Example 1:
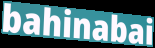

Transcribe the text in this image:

bahinabai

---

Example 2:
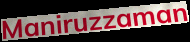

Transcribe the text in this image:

Maniruzzaman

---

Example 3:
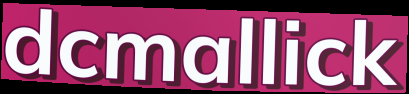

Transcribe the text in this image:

dcmallick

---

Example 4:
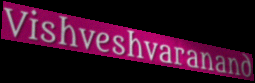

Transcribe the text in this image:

Vishveshvaranand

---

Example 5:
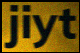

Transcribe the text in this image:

jiyt